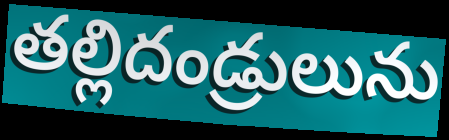
తల్లిదండ్రులును